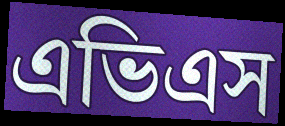
এভিএস